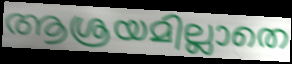
ആശ്രയമില്ലാതെ